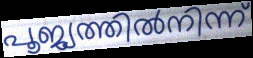
പൂജ്യത്തിൽനിന്ന്